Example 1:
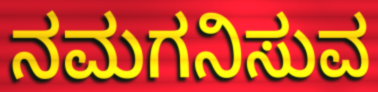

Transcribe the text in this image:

ನಮಗನಿಸುವ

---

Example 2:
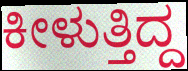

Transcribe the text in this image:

ಕೀಳುತ್ತಿದ್ದ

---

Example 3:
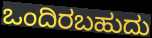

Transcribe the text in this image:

ಒಂದಿರಬಹುದು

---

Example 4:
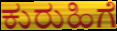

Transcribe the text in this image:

ಕುರುಹಿಗೆ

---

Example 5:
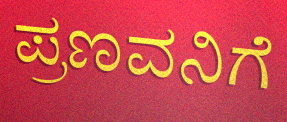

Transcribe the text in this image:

ಪ್ರಣವನಿಗೆ